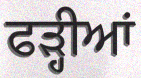
ਫੜ੍ਹੀਆਂ